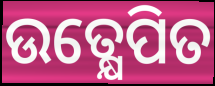
ଉତ୍କ୍ଷେପିତ